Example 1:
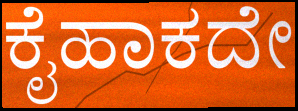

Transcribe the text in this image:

ಕೈಹಾಕದೇ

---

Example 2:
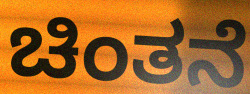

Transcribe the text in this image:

ಚಿಂತನೆ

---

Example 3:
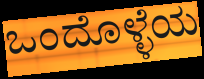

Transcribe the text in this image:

ಒಂದೊಳ್ಳೆಯ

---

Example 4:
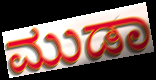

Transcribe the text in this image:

ಮುಡಾ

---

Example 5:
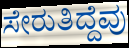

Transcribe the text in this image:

ಸೇರುತಿದ್ದೆವು